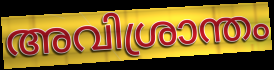
അവിശ്രാന്തം